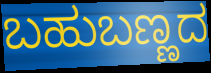
ಬಹುಬಣ್ಣದ